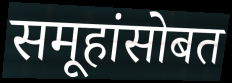
समूहांसोबत